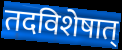
तदविशेषात्